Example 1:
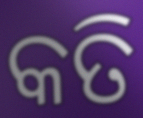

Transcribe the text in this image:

କତି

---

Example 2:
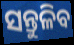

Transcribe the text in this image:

ସନ୍ତୁଳିବ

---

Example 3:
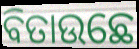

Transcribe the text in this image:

ବିତାଉଛେ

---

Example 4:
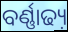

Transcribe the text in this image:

ବର୍ଣ୍ଣାଢ୍ୟ଼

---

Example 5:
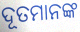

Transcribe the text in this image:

ଦୂତମାନଙ୍କ